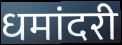
धमांदरी